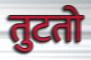
तुटतो